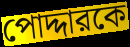
পোদ্দারকে